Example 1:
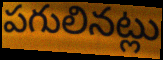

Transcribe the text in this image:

పగులినట్లు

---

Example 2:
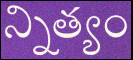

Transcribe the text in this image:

న్నిత్యం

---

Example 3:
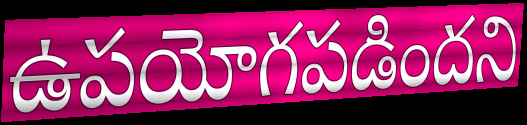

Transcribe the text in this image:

ఉపయోగపడిందని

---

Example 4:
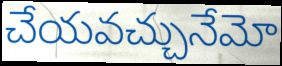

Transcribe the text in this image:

చేయవచ్చునేమో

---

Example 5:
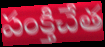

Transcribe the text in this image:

పంక్తిచేత